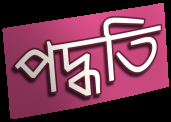
পদ্ধতি